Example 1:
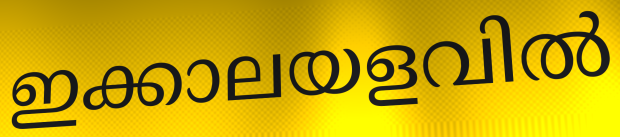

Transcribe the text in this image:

ഇക്കാലയളവിൽ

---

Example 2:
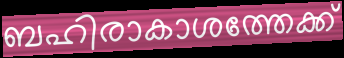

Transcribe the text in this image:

ബഹിരാകാശത്തേക്ക്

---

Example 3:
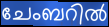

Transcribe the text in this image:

ചേംബറിൽ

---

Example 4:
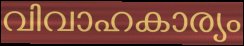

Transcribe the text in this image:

വിവാഹകാര്യം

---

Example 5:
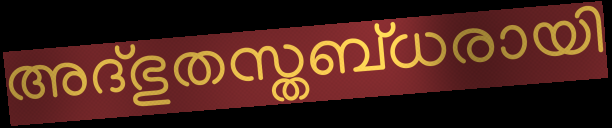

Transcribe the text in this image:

അദ്ഭുതസ്തബ്ധരായി